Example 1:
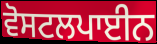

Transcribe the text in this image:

ਵੋਸਟਲਪਾਈਨ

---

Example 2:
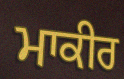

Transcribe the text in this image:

ਮਾਕੀਰ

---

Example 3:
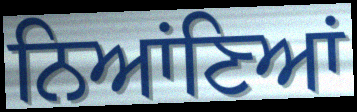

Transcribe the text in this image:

ਨਿਆਂਣਿਆਂ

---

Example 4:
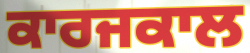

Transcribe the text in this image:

ਕਾਰਜਕਾਲ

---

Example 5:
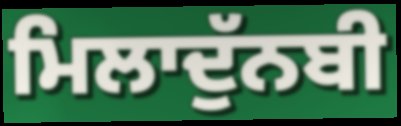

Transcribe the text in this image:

ਮਿਲਾਦੁੱਨਬੀ